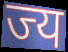
ज्य